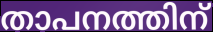
താപനത്തിന്